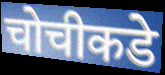
चोचीकडे